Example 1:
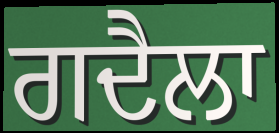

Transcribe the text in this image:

ਗਦੈਲਾ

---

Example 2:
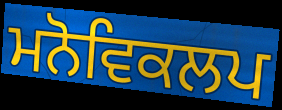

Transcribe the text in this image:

ਮਨੋਵਿਕਲਪ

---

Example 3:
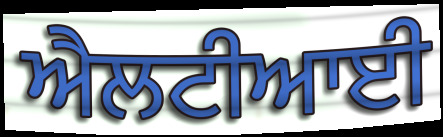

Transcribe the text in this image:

ਐਲਟੀਆਈ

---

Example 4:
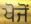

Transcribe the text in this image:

ਖੋਜੋਂ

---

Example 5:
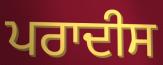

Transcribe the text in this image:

ਪਰਾਦੀਸ